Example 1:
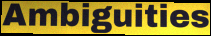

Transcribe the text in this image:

Ambiguities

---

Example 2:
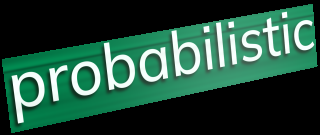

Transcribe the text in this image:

probabilistic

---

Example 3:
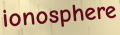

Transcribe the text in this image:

ionosphere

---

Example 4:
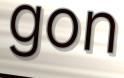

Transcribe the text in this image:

gon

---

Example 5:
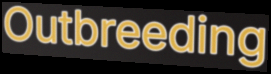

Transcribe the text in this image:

Outbreeding